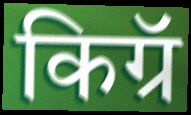
किग्रॅ